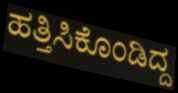
ಹತ್ತಿಸಿಕೊಂಡಿದ್ದ